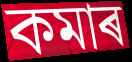
কমাৰ